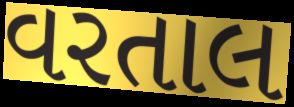
વરતાલ